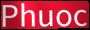
Phuoc